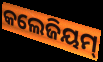
କଲେଜିୟମ୍